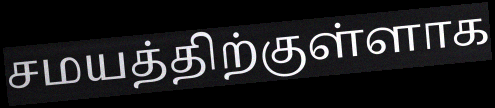
சமயத்திற்குள்ளாக